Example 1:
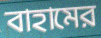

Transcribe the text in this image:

বাহামের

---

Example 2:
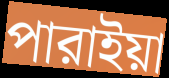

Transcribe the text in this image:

পারাইয়া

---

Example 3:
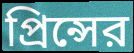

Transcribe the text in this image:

প্রিন্সের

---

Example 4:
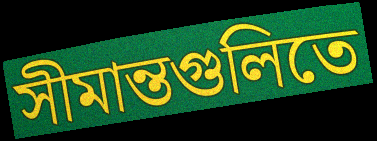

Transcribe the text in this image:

সীমান্তগুলিতে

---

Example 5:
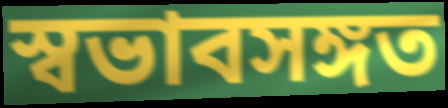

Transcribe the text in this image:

স্বভাবসঙ্গত